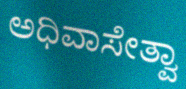
ಅಧಿವಾಸೇತ್ವಾ